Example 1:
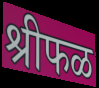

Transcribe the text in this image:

श्रीफळ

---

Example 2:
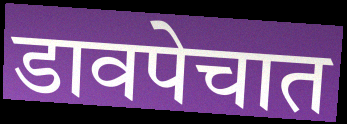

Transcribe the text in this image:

डावपेचात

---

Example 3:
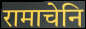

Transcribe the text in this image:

रामाचेनि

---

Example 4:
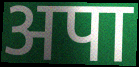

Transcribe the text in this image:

अपा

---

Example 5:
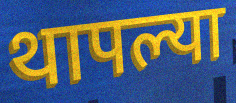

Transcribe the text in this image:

थापल्या